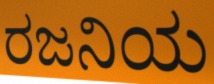
ರಜನಿಯ